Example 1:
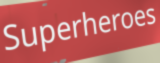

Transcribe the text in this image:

Superheroes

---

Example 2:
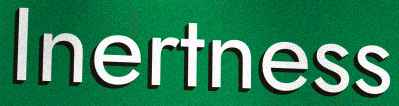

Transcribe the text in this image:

Inertness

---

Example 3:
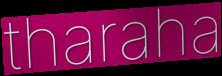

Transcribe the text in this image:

tharaha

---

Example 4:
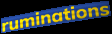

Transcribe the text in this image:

ruminations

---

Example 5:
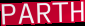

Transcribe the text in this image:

PARTH